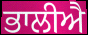
ਭਾਲੀਐ